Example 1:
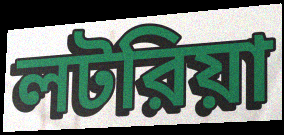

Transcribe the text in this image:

লটরিয়া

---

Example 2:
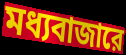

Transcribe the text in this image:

মধ্যবাজারে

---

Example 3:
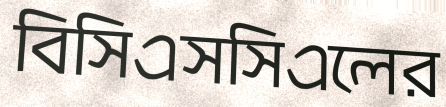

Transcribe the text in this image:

বিসিএসসিএলের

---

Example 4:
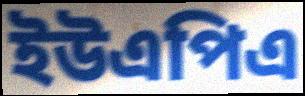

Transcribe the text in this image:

ইউএপিএ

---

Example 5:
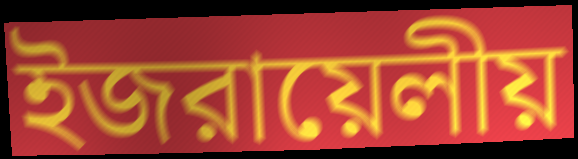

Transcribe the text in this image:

ইজরায়েলীয়